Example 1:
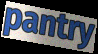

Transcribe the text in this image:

pantry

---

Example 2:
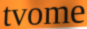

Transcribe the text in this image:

tvome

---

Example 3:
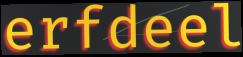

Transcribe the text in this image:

erfdeel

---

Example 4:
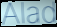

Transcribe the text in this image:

Alad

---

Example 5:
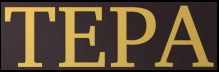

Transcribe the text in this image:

TEPA